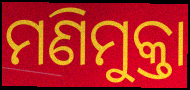
ମଣିମୁକ୍ତା